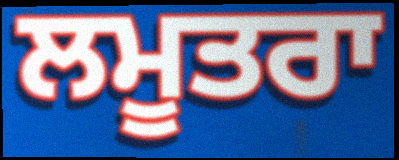
ਲਮੂਤਰਾ